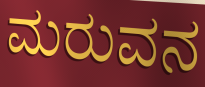
ಮರುವನ